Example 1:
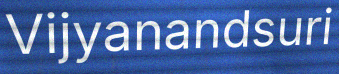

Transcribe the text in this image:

Vijyanandsuri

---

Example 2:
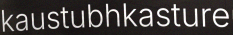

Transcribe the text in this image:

kaustubhkasture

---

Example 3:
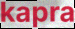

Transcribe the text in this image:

kapra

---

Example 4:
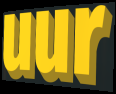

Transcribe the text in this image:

uur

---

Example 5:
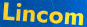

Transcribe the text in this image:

Lincom